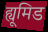
ह्यूमिड